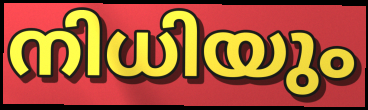
നിധിയും